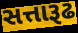
સત્તારૂઢ